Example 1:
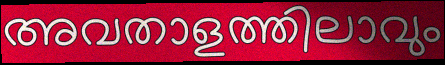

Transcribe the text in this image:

അവതാളത്തിലാവും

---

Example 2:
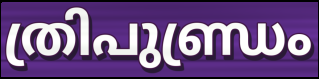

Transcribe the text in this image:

ത്രിപുണ്ഡ്രം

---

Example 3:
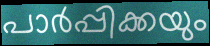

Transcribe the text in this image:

പാർപ്പിക്കയും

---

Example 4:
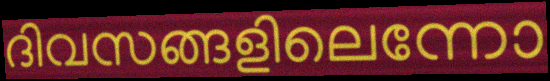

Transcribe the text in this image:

ദിവസങ്ങളിലെന്നോ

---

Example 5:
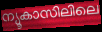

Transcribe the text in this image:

ന്യൂകാസിലിലെ